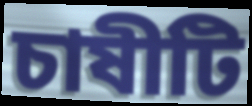
চাষীটি